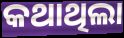
କଥାଥିଲା